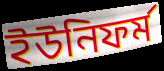
ইউনিফৰ্ম